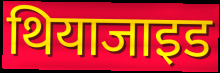
थियाजाइड